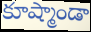
కూష్మాండా